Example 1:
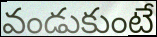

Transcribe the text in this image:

వండుకుంటే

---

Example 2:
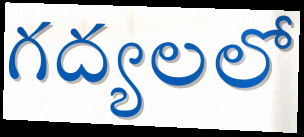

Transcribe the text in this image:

గద్యలలో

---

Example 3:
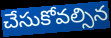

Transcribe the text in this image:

చేసుకోవల్సిన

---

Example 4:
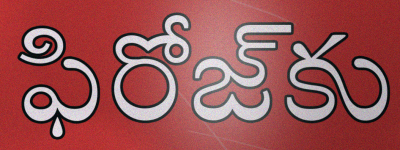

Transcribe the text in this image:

ఫిరోజ్‌కు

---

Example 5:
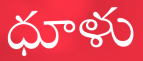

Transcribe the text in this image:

ధూళు